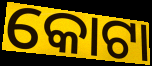
କୋଟା